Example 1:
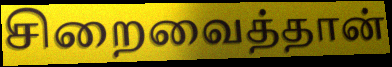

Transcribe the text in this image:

சிறைவைத்தான்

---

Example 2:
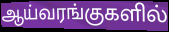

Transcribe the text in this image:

ஆய்வரங்குகளில்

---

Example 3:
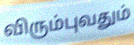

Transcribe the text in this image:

விரும்புவதும்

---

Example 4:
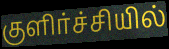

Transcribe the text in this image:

குளிர்ச்சியில்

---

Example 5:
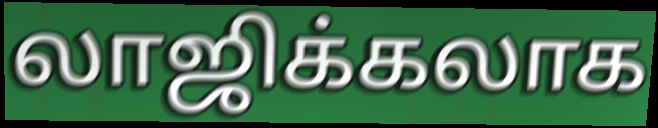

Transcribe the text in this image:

லாஜிக்கலாக